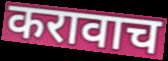
करावाच